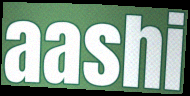
aashi